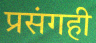
प्रसंगही